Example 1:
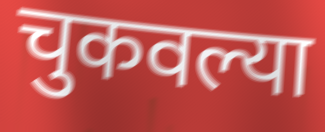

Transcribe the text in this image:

चुकवल्या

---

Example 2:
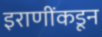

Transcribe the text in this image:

इराणींकडून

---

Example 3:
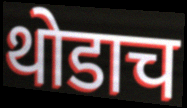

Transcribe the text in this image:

थोडाच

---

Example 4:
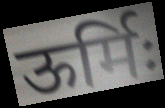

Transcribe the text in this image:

ऊर्मिः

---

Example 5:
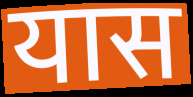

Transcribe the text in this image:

यास